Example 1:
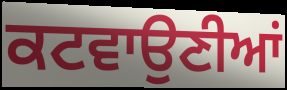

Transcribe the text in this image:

ਕਟਵਾਉਣੀਆਂ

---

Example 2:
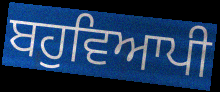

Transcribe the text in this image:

ਬਹੁਵਿਆਪੀ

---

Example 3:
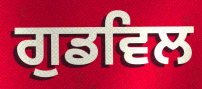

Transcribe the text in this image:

ਗੁਡਵਿਲ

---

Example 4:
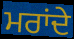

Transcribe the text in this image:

ਮਰਾਂਦੇ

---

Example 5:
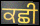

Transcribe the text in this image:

ਕਛੀ